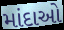
માંદાઓ